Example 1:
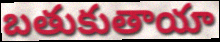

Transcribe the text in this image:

బతుకుతాయా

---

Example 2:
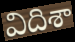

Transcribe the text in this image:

విదిశా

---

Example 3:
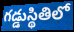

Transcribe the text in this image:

గడ్డుస్థితిలో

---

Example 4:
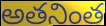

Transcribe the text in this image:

అతనింత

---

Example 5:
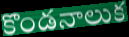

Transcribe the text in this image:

కొండనాలుక